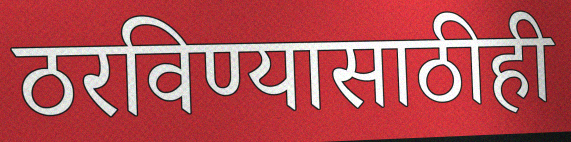
ठरविण्यासाठीही